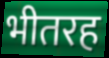
भीतरह